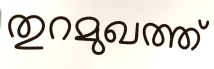
തുറമുഖത്ത്